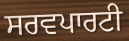
ਸਰਵਪਾਰਟੀ